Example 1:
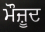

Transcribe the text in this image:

ਮੌਜ਼ੂਦ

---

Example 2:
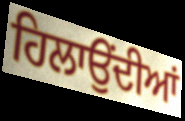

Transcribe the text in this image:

ਹਿਲਾਉਂਦੀਆਂ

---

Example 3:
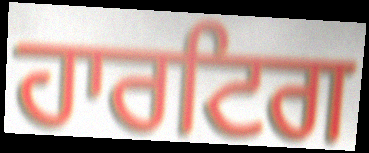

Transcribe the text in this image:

ਹਾਰਟਿਗ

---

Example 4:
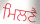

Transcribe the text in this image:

ਮਿਲਣੈ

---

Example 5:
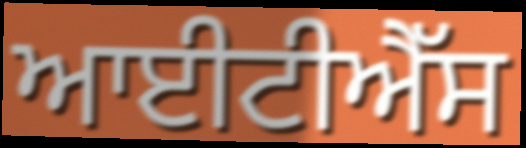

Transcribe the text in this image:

ਆਈਟੀਐੱਸ